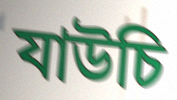
যাউচি